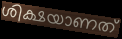
ശിക്ഷയാണത്